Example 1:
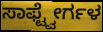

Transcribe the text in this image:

ಸಾಫ್ಟ್ವೇರ್ಗಳ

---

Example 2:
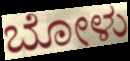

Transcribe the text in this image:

ಬೋಳು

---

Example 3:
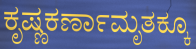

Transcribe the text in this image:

ಕೃಷ್ಣಕರ್ಣಾಮೃತಕ್ಕೂ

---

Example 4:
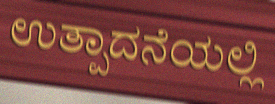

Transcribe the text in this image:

ಉತ್ಪಾದನೆಯಲ್ಲಿ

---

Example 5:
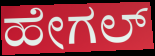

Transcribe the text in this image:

ಹೇಗಲ್